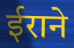
ईराने